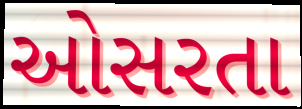
ઓસરતા